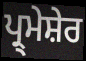
ਪ੍ਰ੍ਮੇਸ਼ੇਰ